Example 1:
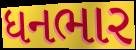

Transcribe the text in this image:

ધનભાર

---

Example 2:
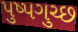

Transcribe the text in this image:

પુષ્પગુચ્છ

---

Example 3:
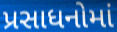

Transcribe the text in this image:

પ્રસાધનોમાં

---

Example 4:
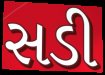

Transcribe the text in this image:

સડી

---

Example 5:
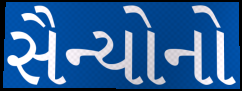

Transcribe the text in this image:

સૈન્યોનો